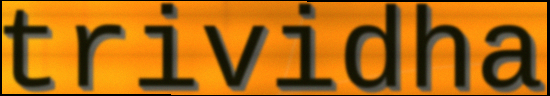
trividha